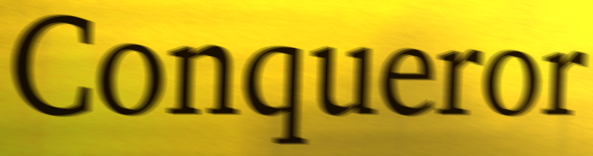
Conqueror